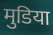
मुडिया